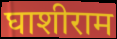
घाशीराम